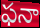
ఫనా